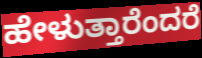
ಹೇಳುತ್ತಾರೆಂದರೆ